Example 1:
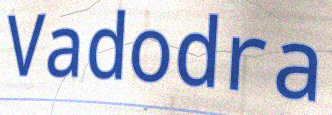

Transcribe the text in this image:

Vadodra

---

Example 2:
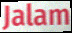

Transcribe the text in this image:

Jalam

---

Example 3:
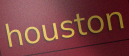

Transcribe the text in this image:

houston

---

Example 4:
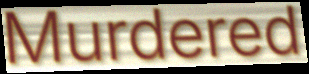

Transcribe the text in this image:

Murdered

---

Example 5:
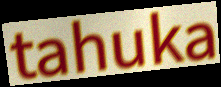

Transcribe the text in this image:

tahuka